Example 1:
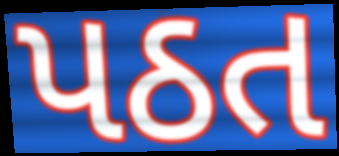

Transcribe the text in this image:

પઠત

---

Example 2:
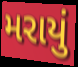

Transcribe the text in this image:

મરાયું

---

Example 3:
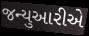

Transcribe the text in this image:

જન્યુઆરીએ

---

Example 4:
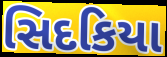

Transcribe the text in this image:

સિદકિયા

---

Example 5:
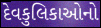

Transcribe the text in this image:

દેવકુલિકાઓનો